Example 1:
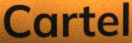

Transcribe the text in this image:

Cartel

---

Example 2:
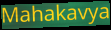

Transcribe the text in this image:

Mahakavya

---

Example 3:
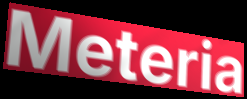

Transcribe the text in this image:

Meteria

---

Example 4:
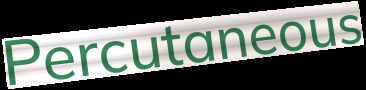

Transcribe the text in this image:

Percutaneous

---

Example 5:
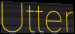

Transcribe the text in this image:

Utter